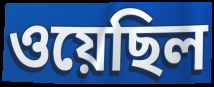
ওয়েছিল